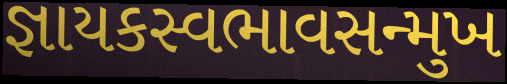
જ્ઞાયકસ્વભાવસન્મુખ